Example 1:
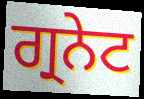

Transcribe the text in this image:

ਗ੍ਰਨੇਟ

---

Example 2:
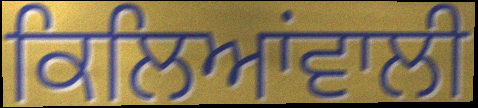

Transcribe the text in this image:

ਕਿਲਿਆਂਵਾਲੀ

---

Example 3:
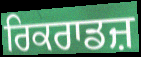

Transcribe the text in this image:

ਰਿਕਰਾਡਜ਼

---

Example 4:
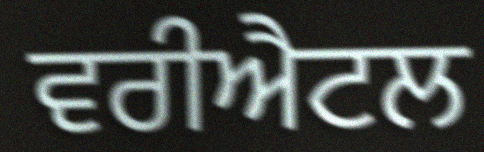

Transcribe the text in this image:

ਵਰੀਐਟਲ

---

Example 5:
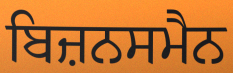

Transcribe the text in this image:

ਬਿਜ਼ਨਸਮੈਨ